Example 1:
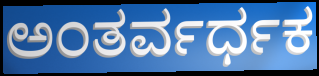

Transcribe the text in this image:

ಅಂತರ್ವರ್ಧಕ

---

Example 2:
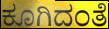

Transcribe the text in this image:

ಕೂಗಿದಂತೆ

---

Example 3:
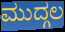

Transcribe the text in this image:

ಮುದ್ಗಲ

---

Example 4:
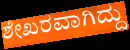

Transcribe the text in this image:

ಶೇಖರವಾಗಿದ್ದು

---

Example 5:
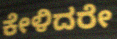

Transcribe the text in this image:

ಕೇಳಿದರೇ